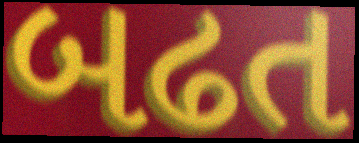
બઢત